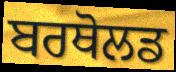
ਬਰਥੋਲਡ